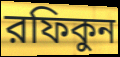
রফিকুন